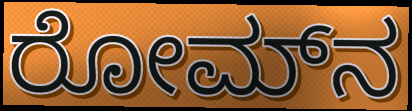
ರೋಮ್‌ನ